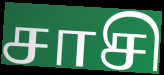
சாசி